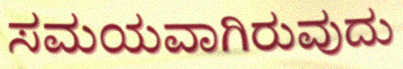
ಸಮಯವಾಗಿರುವುದು